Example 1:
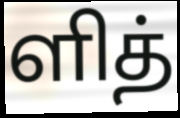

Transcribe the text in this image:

ளித்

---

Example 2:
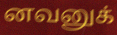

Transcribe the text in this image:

னவனுக்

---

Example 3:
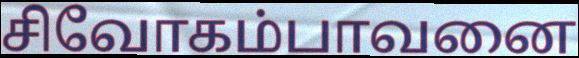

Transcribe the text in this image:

சிவோகம்பாவனை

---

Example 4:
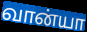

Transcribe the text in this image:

வான்யா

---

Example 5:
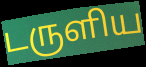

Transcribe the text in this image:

டருளிய